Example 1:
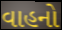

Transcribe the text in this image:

વાહનો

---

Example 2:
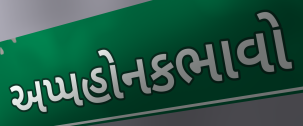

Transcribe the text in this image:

અપ્પહોનકભાવો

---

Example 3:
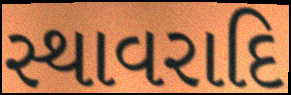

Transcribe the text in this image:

સ્થાવરાદિ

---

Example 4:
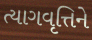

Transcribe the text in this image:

ત્યાગવૃત્તિને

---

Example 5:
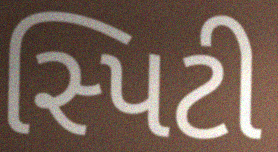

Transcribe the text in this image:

સ્પિટી